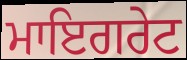
ਮਾਇਗਰੇਟ